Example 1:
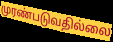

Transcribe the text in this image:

முரண்படுவதில்லை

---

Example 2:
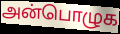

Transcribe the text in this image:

அன்பொழுக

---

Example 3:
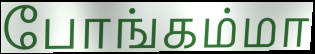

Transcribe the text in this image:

போங்கம்மா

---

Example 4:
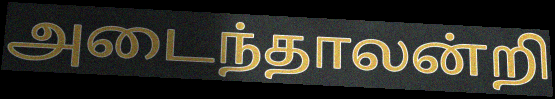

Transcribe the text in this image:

அடைந்தாலன்றி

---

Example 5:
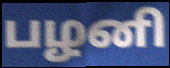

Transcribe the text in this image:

பழனி